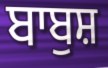
ਬਾਬੁਸ਼